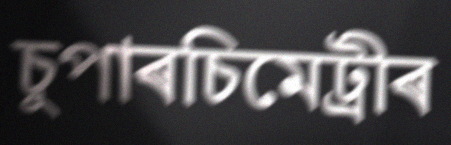
চুপাৰচিমেট্ৰীৰ